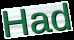
Had